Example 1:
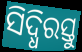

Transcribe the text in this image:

ସିଦ୍ଧିରସ୍ତୁ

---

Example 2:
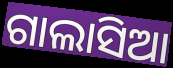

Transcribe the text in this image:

ଗାଲାସିଆ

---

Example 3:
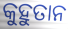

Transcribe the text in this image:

କୁହୁତାନ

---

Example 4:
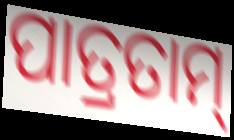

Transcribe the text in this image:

ପାତ୍ରତାମ୍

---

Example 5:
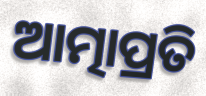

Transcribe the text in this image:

ଆତ୍ମାପ୍ରତି